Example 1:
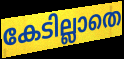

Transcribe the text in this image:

കേടില്ലാതെ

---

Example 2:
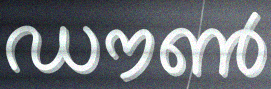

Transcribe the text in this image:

ഡൗൺ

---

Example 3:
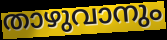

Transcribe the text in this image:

താഴുവാനും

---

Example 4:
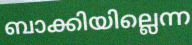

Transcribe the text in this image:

ബാക്കിയില്ലെന്ന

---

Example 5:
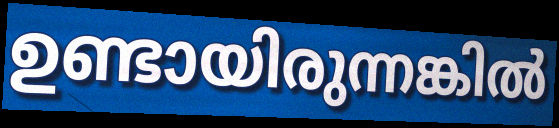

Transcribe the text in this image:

ഉണ്ടായിരുന്നങ്കിൽ